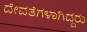
ದೇವತೆಗಳಾಗಿದ್ದರು